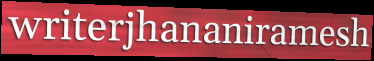
writerjhananiramesh